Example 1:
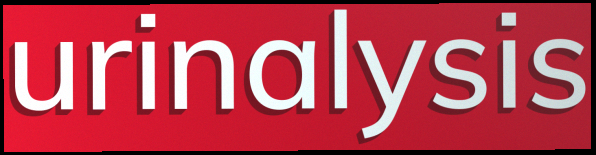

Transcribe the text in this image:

urinalysis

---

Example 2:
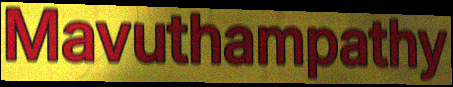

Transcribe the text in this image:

Mavuthampathy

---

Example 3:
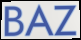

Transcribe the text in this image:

BAZ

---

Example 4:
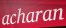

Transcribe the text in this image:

acharan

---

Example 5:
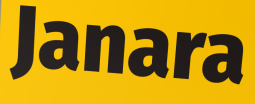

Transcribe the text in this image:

Janara